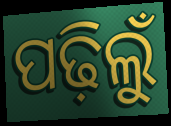
ପଢ଼ିଲୁଁ